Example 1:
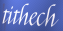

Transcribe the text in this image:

tithech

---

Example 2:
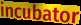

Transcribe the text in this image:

incubator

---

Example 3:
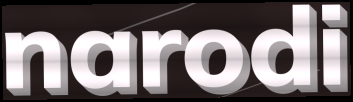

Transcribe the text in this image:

narodi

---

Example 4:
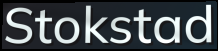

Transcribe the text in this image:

Stokstad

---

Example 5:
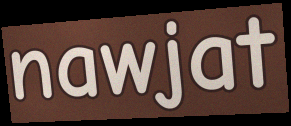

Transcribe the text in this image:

nawjat